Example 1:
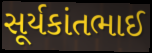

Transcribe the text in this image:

સૂર્યકાંતભાઈ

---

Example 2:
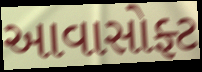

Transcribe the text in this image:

આવાસોફ્ટ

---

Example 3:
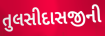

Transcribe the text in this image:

તુલસીદાસજીની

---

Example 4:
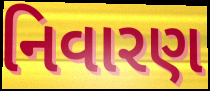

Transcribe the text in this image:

નિવારણ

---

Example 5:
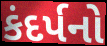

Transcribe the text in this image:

કંદર્પનો